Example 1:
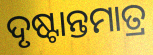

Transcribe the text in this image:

ଦୃଷ୍ଟାନ୍ତମାତ୍ର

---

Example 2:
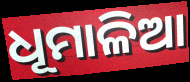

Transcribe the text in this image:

ଧୂମାଳିଆ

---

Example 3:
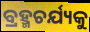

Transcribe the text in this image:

ବ୍ରହ୍ମଚର୍ଯ୍ୟକୁ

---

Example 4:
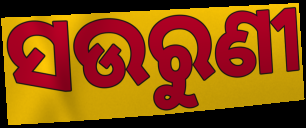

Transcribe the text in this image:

ସଉରୁଣୀ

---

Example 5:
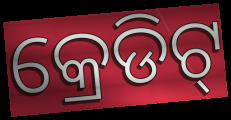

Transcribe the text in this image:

କ୍ରେଡିଟ୍